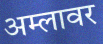
अम्लावर